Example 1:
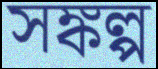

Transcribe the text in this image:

সঙ্কল্প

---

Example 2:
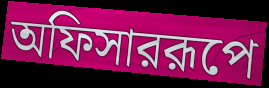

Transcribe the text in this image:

অফিসাররূপে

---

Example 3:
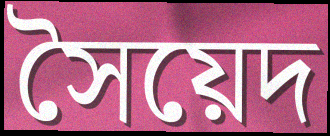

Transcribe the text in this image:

সৈয়েদ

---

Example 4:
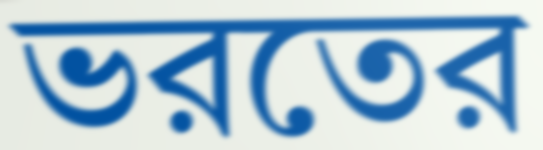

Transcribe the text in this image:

ভরতের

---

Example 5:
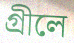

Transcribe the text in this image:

গ্রীলে